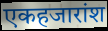
एकहजारांश